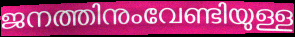
ജനത്തിനുംവേണ്ടിയുള്ള